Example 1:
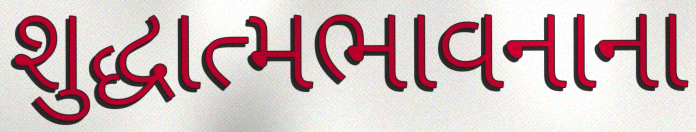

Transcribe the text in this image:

શુદ્ધાત્મભાવનાના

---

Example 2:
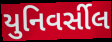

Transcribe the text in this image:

યુનિવર્સીલ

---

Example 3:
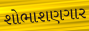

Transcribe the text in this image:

શોભાશણગાર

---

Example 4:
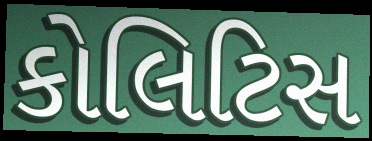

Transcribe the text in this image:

કોલિટિસ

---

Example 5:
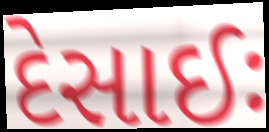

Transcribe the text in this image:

દેસાઈઃ